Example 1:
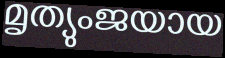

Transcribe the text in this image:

മൃത്യുംജയായ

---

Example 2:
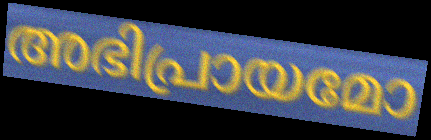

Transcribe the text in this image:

അഭിപ്രായമോ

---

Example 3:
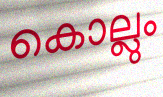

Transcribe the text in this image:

കൊല്ലും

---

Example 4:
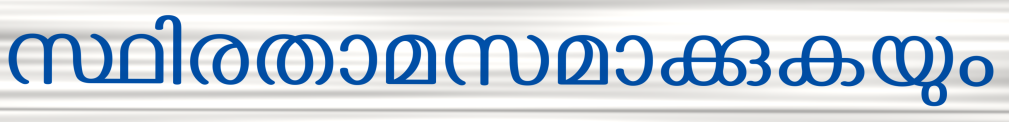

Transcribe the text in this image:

സ്ഥിരതാമസമാക്കുകയും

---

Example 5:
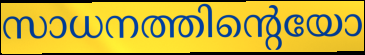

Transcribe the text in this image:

സാധനത്തിന്റെയോ